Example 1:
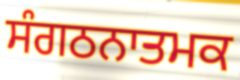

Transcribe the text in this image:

ਸੰਗਠਨਾਤਮਕ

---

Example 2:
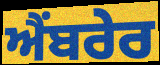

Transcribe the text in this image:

ਐਂਬਰੇਰ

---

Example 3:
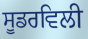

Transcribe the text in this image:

ਸੂਡਰਵਿਲੀ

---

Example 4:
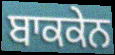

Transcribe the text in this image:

ਬਾਕਕੇਨ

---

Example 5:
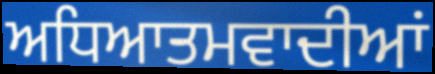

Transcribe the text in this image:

ਅਧਿਆਤਮਵਾਦੀਆਂ